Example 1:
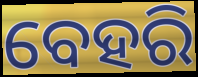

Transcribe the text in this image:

ବେହରି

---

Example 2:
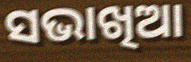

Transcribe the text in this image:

ସଭାଖିଆ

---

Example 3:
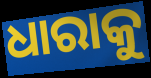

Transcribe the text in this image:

ଧାରାକୁ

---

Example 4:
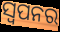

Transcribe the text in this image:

ସ୍ୱପନର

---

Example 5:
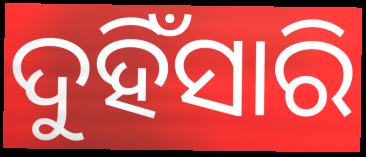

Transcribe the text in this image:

ଦୁହିଁସାରି